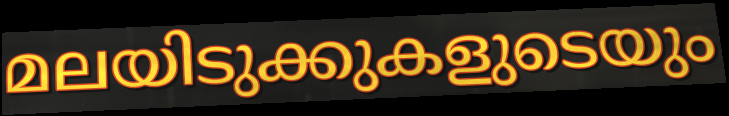
മലയിടുക്കുകളുടെയും